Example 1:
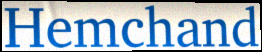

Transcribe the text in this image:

Hemchand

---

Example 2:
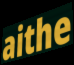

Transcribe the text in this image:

aithe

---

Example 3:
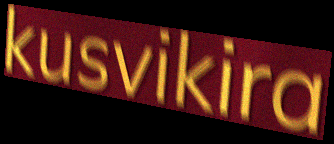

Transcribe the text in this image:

kusvikira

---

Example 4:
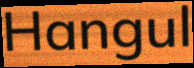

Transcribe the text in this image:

Hangul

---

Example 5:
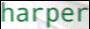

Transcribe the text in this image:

harper